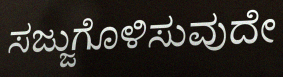
ಸಜ್ಜುಗೊಳಿಸುವುದೇ